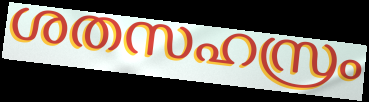
ശതസഹസ്രം